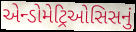
એન્ડોમેટ્રિઓસિસનું